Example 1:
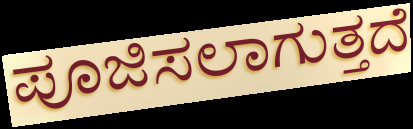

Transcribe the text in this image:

ಪೂಜಿಸಲಾಗುತ್ತದೆ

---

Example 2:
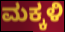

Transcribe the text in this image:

ಮಕ್ಕಳಿ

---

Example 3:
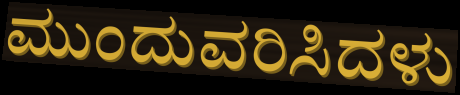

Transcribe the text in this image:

ಮುಂದುವರಿಸಿದಳು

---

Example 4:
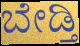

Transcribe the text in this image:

ಬೇಡ್ತಿ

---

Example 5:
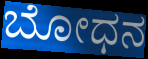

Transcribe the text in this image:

ಬೋಧನ